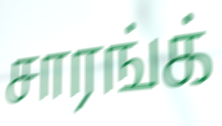
சாரங்க்